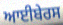
ਆਈਬੇਰਸ